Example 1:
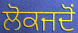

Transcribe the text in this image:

ਲੋਕਜਦੋਂ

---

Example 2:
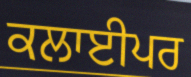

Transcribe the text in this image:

ਕਲਾਈਪਰ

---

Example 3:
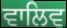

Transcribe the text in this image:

ਵਾਲਿਵ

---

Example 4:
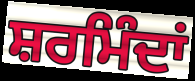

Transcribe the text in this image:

ਸ਼ਰਮਿੰਦਾਂ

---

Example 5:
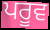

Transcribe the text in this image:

ਪਰੂਵ